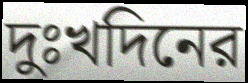
দুঃখদিনের